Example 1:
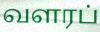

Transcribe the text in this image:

வளரப்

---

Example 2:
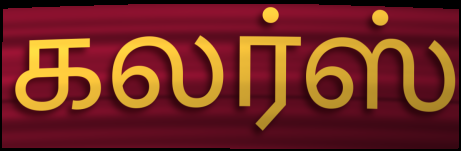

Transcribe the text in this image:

கலர்ஸ்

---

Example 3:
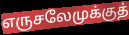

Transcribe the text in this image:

எருசலேமுக்குத்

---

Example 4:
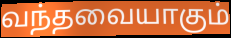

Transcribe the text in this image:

வந்தவையாகும்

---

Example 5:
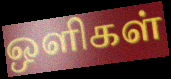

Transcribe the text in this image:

ஒளிகள்